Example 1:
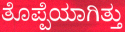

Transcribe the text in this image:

ತೊಪ್ಪೆಯಾಗಿತ್ತು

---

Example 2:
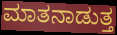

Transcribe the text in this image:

ಮಾತನಾಡುತ್ತ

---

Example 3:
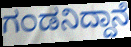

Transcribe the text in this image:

ಗಂಡನಿದ್ದಾನೆ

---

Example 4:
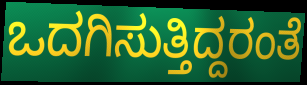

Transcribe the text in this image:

ಒದಗಿಸುತ್ತಿದ್ದರಂತೆ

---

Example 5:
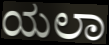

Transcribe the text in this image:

ಯಲಾ